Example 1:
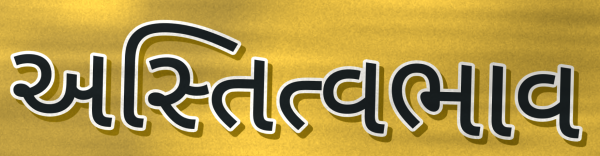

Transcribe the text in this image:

અસ્તિત્વભાવ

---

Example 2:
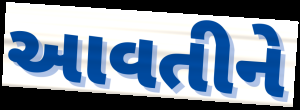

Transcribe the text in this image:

આવતીને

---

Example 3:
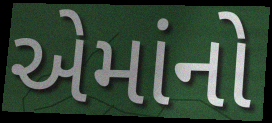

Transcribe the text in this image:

એમાંનો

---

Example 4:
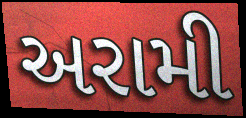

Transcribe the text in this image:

અરામી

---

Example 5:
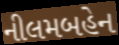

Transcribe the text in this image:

નીલમબહેન